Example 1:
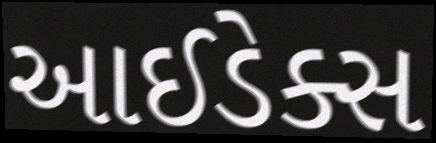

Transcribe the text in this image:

આઈડેક્સ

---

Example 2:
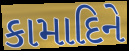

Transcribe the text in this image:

કામાદિને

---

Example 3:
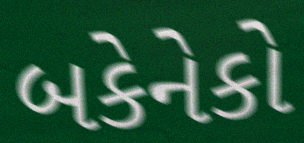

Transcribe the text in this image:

બકેનેકો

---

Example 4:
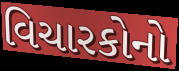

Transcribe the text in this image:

વિચારકોનો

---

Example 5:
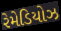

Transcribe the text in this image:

રેમેડિયોઝ